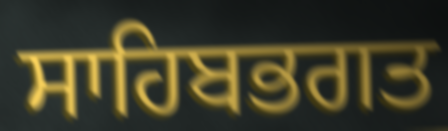
ਸਾਹਿਬਭਗਤ